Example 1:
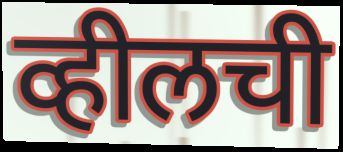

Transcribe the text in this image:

व्हीलची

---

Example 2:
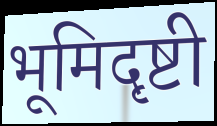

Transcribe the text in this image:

भूमिदृष्टी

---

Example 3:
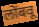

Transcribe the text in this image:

लोंबवू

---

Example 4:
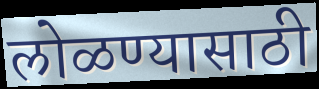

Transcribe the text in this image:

लोळण्यासाठी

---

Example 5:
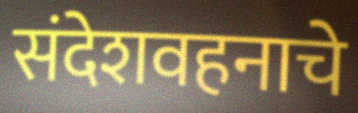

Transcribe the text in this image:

संदेशवहनाचे